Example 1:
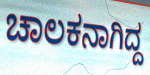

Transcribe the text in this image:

ಚಾಲಕನಾಗಿದ್ದ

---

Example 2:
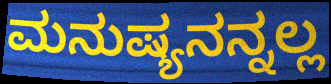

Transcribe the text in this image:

ಮನುಷ್ಯನನ್ನಲ್ಲ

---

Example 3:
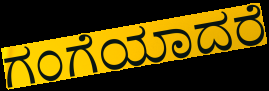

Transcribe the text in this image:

ಗಂಗೆಯಾದರೆ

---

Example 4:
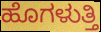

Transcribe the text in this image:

ಹೊಗಳುತ್ತಿ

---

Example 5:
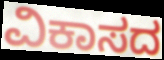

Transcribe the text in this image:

ವಿಕಾಸದ